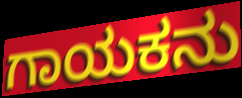
ಗಾಯಕನು